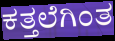
ಕತ್ತಲೆಗಿಂತ